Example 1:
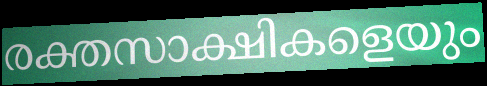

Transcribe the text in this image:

രക്തസാക്ഷികളെയും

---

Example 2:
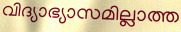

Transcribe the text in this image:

വിദ്യാഭ്യാസമില്ലാത്ത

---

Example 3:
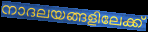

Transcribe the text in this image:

നാദലയങ്ങളിലേക്ക്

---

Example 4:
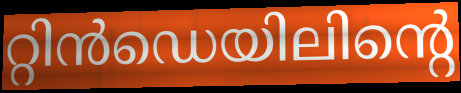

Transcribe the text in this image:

റ്റിൻഡെയിലിന്റെ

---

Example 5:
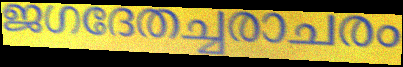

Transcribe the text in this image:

ജഗദേതച്ചരാചരം